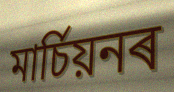
মাৰ্চিয়নৰ